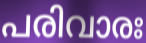
പരിവാരഃ